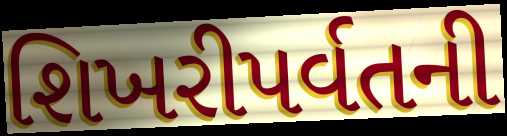
શિખરીપર્વતની